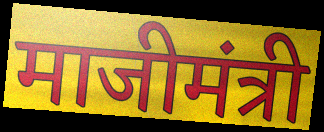
माजीमंत्री